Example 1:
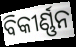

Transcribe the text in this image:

ବିକୀର୍ଣ୍ଣନ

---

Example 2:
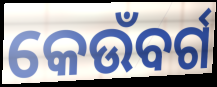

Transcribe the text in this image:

କେଉଁବର୍ଗ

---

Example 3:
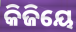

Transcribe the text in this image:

କିଜିୟେ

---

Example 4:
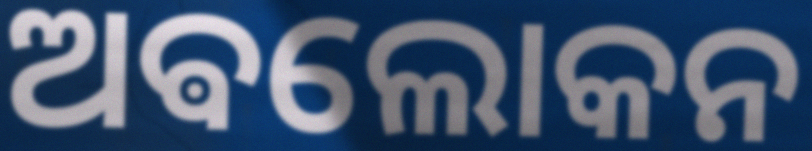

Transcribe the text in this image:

ଅଵଲୋକନ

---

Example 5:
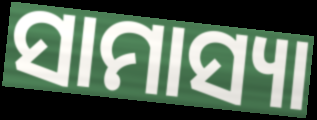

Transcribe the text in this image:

ସାମାସ୍ୟା